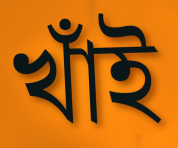
খাঁই